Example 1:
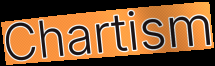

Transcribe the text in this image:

Chartism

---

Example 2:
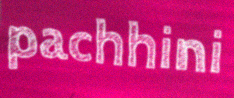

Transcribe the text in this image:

pachhini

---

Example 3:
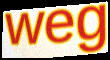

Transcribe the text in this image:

weg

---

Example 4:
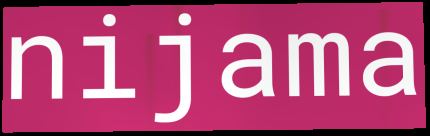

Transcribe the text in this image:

nijama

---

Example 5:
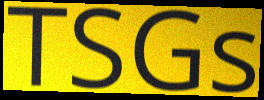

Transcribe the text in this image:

TSGs